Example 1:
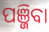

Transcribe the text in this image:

ପଞ୍ଜିବା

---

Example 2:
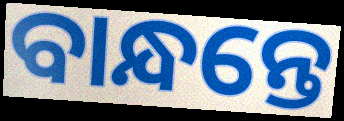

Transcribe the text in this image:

ବାନ୍ଧନ୍ତେ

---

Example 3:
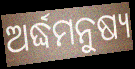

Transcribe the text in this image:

ଅର୍ଦ୍ଧମନୁଷ୍ୟ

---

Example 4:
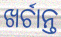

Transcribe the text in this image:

ଖର୍ଚାନ୍ତ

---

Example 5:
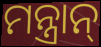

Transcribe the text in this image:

ମନ୍ତ୍ରାନ୍